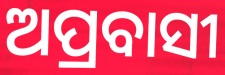
ଅପ୍ରବାସୀ